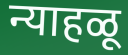
न्याहळू